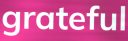
grateful